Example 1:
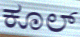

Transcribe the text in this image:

ಕೂಲ್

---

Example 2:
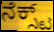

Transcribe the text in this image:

ನೆಕ್ಸ್ಟ್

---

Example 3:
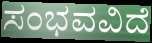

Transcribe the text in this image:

ಸಂಭವವಿದೆ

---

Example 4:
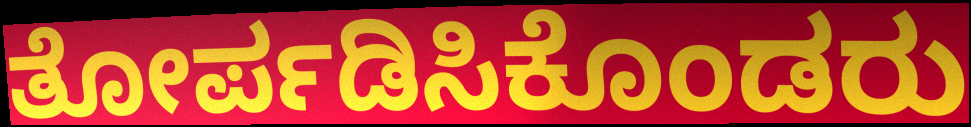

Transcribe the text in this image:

ತೋರ್ಪಡಿಸಿಕೊಂಡರು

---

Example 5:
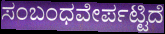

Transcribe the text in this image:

ಸಂಬಂಧವೇರ್ಪಟ್ಟಿದೆ